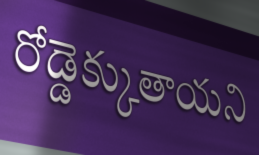
రోడ్డెక్కుతాయని